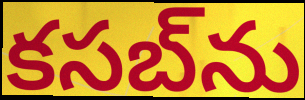
కసబ్‌ను